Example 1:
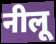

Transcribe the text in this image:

नीलू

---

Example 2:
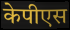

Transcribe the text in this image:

केपीएस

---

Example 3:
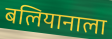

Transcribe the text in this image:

बलियानाला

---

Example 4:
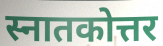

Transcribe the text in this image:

स्नातकोत्तर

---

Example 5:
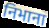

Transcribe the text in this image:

निभाना